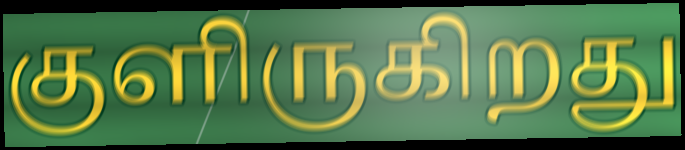
குளிருகிறது